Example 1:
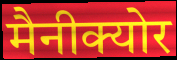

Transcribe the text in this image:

मैनीक्योर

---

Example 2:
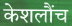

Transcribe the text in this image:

केशलौंच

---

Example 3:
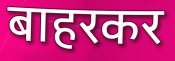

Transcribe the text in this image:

बाहरकर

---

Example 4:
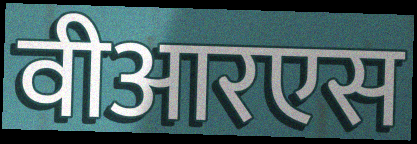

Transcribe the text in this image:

वीआरएस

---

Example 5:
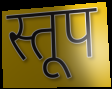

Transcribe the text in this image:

स्तूप